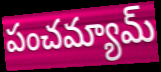
పంచమ్యామ్